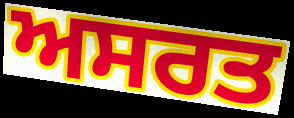
ਅਸਰਤ